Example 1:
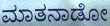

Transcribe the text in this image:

ಮಾತನಾಡೋ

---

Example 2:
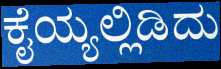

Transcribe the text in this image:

ಕೈಯ್ಯಲ್ಲಿಡಿದು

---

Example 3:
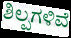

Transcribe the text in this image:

ಶಿಲ್ಪಗಳಿವೆ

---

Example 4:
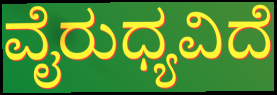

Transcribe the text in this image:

ವೈರುಧ್ಯವಿದೆ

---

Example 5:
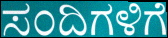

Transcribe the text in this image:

ಸಂದಿಗಳಿಗೆ